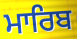
ਮਾਰਿਬ